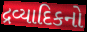
દ્રવ્યાદિકનો